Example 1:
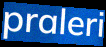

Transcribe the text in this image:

praleri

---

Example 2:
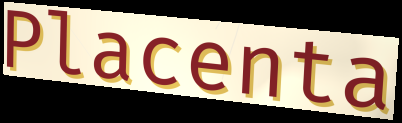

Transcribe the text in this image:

Placenta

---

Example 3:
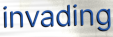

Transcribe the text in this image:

invading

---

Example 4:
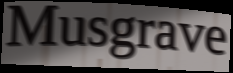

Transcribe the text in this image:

Musgrave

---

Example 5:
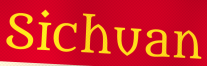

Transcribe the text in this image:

Sichuan